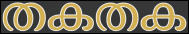
തകതക